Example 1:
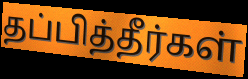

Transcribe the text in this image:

தப்பித்தீர்கள்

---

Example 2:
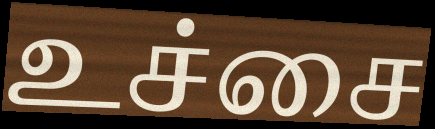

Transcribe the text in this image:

உச்சை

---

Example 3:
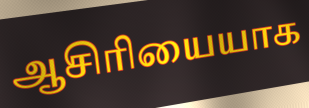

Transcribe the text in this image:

ஆசிரியையாக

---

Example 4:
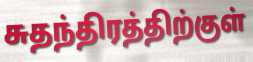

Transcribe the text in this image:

சுதந்திரத்திற்குள்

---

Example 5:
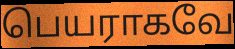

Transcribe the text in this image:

பெயராகவே